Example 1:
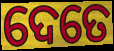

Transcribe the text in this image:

ଦେତେ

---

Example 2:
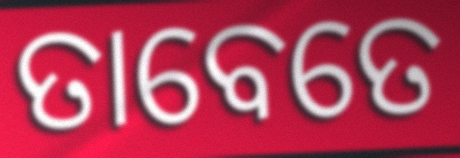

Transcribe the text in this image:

ତାବେତେ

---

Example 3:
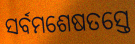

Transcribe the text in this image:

ସର୍ବମଶେଷତସ୍ତେ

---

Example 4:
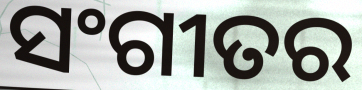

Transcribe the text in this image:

ସଂଗୀତର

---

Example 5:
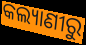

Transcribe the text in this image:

କଲ୍ୟାଣୀରୁ